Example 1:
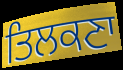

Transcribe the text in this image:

ਤਿਲਕਣਾ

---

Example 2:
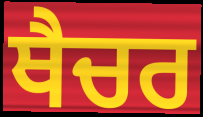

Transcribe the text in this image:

ਥੈਚਰ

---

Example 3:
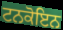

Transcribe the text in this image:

ਟਨਕੋਇਨ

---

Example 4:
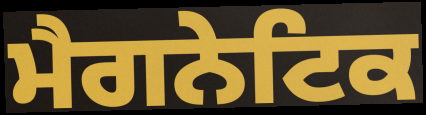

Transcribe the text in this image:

ਮੈਗਨੇਟਿਕ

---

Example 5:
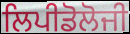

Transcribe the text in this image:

ਲਿਪੀਡੋਲੋਜੀ